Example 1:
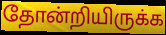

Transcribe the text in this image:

தோன்றியிருக்க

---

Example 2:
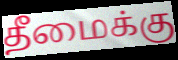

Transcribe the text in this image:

தீமைக்கு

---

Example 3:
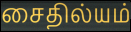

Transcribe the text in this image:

சைதில்யம்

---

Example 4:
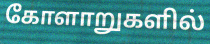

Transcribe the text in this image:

கோளாறுகளில்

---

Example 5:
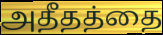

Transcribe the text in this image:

அதீதத்தை